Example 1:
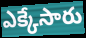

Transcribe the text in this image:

ఎక్కేసారు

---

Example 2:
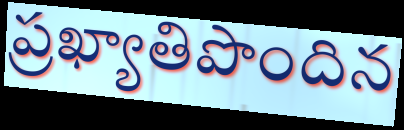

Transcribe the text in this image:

ప్రఖ్యాతిపొందిన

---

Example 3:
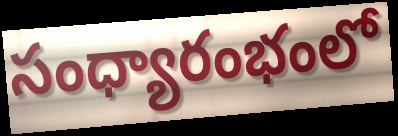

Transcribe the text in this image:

సంధ్యారంభంలో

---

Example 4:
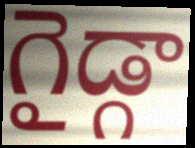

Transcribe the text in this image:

గైడ్గా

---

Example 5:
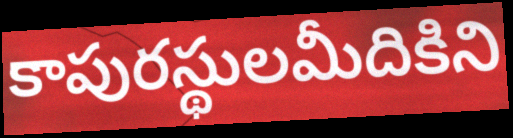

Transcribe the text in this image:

కాపురస్థులమీదికిని